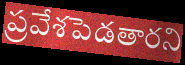
ప్రవేశపెడతారని